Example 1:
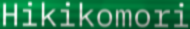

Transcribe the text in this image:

Hikikomori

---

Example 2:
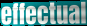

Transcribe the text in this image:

effectual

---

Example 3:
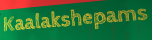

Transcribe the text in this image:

Kaalakshepams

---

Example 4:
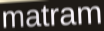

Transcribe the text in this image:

matram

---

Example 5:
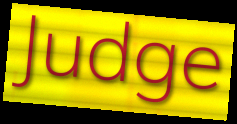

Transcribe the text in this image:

Judge